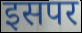
इसपर